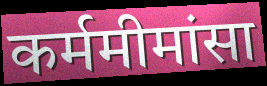
कर्ममीमांसा